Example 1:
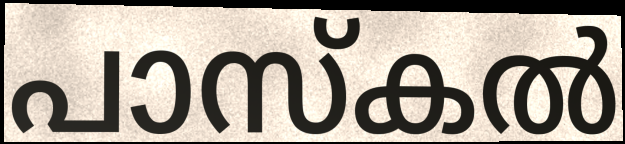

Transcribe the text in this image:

പാസ്കൽ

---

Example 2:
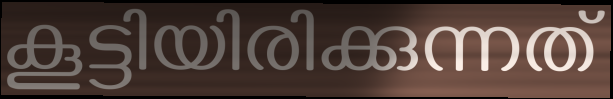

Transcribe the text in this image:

കൂട്ടിയിരിക്കുന്നത്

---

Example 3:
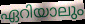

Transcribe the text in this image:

ഏറിയാലും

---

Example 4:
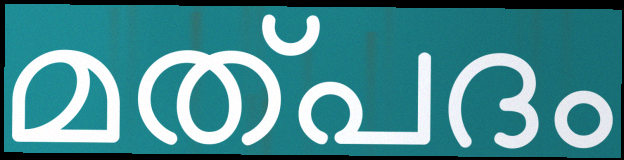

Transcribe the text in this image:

മത്പദം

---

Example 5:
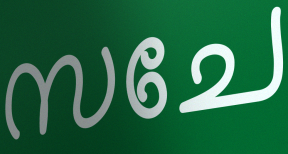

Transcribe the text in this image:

സചേ